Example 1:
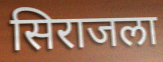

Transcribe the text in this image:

सिराजला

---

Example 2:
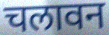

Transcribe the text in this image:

चलावन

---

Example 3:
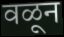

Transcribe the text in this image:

वळून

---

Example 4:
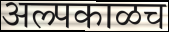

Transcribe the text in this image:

अल्पकाळच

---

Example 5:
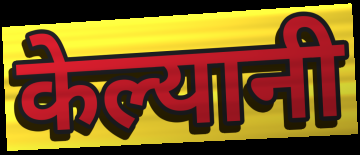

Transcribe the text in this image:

केल्यानी